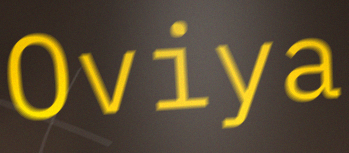
Oviya